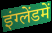
इंग्लेंडमें